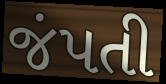
જંપતી